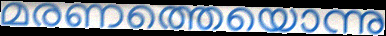
മരണത്തെയൊന്നു